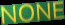
NONE